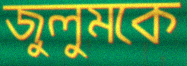
জুলুমকে